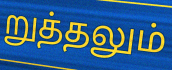
றுத்தலும்